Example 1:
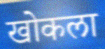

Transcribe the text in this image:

खोकला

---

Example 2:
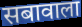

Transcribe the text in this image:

सबावाला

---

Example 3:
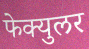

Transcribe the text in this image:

फेक्युलर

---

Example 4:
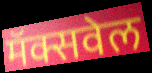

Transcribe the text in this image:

मॅक्सवेल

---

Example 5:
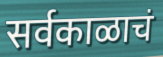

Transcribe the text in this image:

सर्वकाळाचं